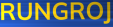
RUNGROJ